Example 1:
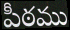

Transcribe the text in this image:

పీఠము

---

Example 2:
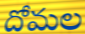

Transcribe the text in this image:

దోమల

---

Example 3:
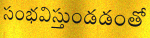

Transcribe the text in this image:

సంభవిస్తుండడంతో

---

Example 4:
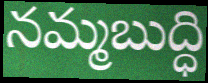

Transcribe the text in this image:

నమ్మబుద్ధి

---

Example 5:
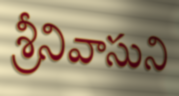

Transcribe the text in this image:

శ్రీనివాసుని